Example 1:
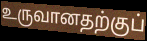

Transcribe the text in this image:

உருவானதற்குப்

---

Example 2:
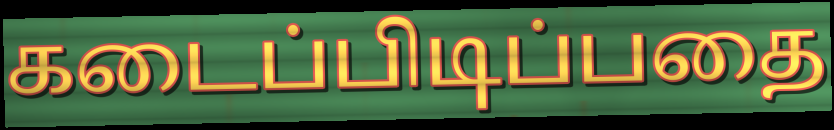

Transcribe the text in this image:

கடைப்பிடிப்பதை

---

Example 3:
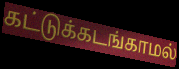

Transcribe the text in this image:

கட்டுக்கடங்காமல்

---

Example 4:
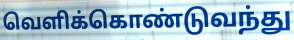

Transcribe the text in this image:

வெளிக்கொண்டுவந்து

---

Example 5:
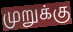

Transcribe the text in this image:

முறுக்கு